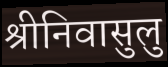
श्रीनिवासुलु